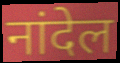
नांदेल